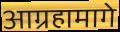
आग्रहामागे